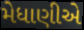
મેધાણીએ